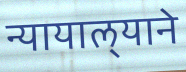
न्यायाल्याने